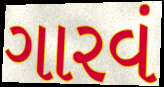
ગારવં